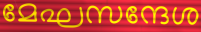
മേഘസന്ദേശ